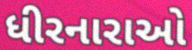
ધીરનારાઓ